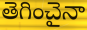
తెగించైనా